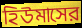
হিউমাসের